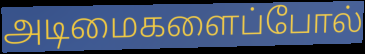
அடிமைகளைப்போல்